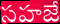
సహజే